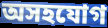
অসহযোগ